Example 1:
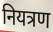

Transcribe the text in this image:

नियत्रण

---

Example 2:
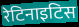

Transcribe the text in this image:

रेटिनाइटिस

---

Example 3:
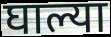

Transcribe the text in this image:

घाल्या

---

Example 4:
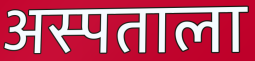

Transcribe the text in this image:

अस्पताला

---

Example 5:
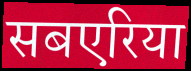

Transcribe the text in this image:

सबएरिया